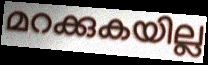
മറക്കുകയില്ല